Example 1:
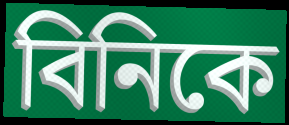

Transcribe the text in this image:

বিনিকে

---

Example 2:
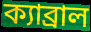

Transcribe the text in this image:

ক্যাব্রাল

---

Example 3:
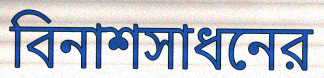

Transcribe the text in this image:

বিনাশসাধনের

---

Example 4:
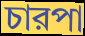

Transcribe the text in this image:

চারপা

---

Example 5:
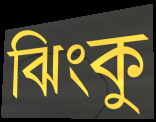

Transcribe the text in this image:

ঝিংকু